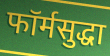
फॉर्मसुद्धा